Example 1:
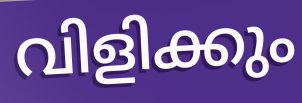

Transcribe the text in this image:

വിളിക്കും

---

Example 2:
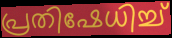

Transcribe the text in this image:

പ്രതിഷേധിച്ച്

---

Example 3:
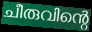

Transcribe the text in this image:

ചീരുവിന്റെ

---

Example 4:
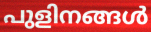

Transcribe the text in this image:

പുളിനങ്ങൾ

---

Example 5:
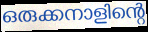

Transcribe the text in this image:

ഒരുക്കനാളിന്റെ